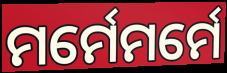
ମର୍ମେମର୍ମେ